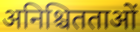
अनिश्चितताओं